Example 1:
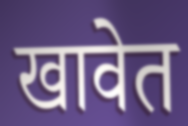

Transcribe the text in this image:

खावेत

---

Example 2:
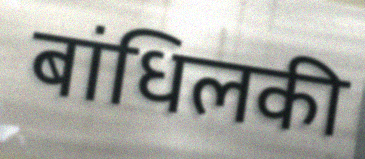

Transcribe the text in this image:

बांधिलकी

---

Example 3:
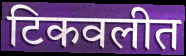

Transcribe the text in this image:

टिकवलीत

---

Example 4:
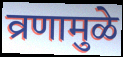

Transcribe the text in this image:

व्रणामुळे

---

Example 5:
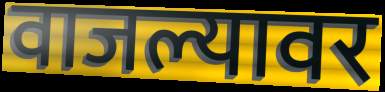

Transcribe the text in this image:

वाजल्यावर